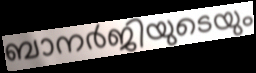
ബാനർജിയുടെയും